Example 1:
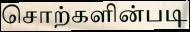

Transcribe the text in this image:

சொற்களின்படி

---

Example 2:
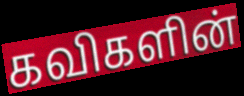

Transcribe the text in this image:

கவிகளின்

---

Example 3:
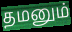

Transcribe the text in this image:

தமனும்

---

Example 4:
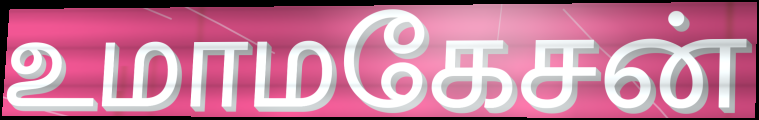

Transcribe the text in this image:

உமாமகேசன்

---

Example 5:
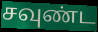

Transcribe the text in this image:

சவுண்ட